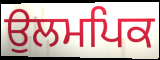
ਉਲਮਪਿਕ